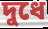
দুধে